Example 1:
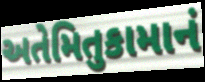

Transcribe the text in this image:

અતેમિતુકામાનં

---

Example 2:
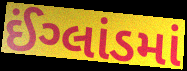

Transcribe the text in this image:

ઈંગ્લાંડમાં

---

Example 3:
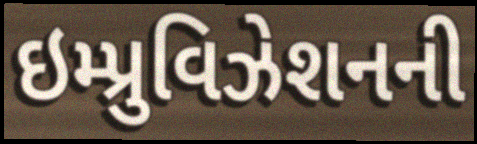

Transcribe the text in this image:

ઇમ્પ્રુવિઝેશનની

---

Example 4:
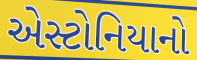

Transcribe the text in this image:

એસ્ટોનિયાનો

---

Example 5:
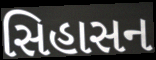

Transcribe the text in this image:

સિહાસન